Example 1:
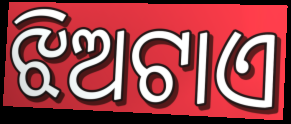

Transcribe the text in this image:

ଝିଅଟାଏ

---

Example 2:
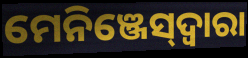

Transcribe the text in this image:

ମେନିଞ୍ଜେସ୍‌ଦ୍ୱାରା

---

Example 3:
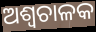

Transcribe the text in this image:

ଅଶ୍ୱଚାଳକ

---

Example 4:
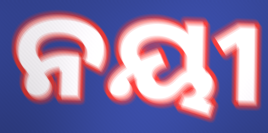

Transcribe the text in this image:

ନୟୀ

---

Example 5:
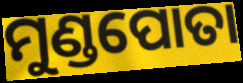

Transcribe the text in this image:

ମୁଣ୍ଡପୋତା